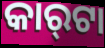
କାର୍‍ଟା